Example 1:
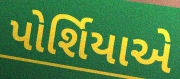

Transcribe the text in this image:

પોર્શિયાએ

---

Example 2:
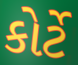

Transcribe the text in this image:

કોર્ટે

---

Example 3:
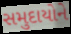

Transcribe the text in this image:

સમુદાયોને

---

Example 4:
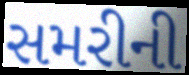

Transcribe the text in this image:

સમરીની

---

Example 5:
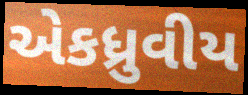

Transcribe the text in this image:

એકધ્રુવીય